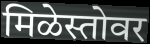
मिळेस्तोवर